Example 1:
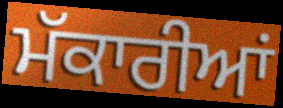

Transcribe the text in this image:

ਮੱਕਾਰੀਆਂ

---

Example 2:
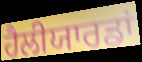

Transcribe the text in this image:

ਹੈਲੀਯਾਰਡਾਂ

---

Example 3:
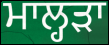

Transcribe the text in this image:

ਮਾਲ੍ਹੜਾ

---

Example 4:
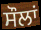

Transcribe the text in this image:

ਸੌਲਾਂ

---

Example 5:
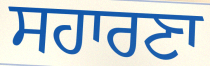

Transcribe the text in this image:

ਸਹਾਰਣਾ